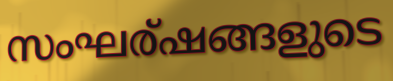
സംഘര്ഷങ്ങളുടെ